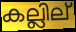
കല്ലില്